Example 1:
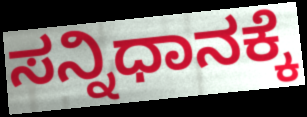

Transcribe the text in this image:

ಸನ್ನಿಧಾನಕ್ಕೆ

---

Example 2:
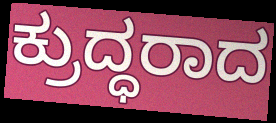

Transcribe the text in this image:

ಕ್ರುದ್ಧರಾದ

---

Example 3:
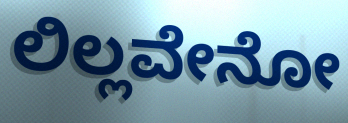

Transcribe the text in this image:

ಲಿಲ್ಲವೇನೋ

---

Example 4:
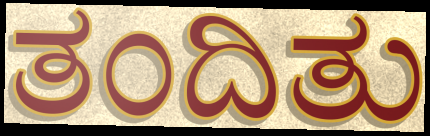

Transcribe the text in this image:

ತಂದಿತು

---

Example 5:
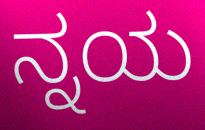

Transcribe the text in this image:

ನ್ನಯ